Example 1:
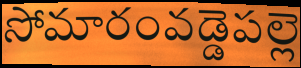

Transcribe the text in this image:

సోమారంవడ్డెపల్లె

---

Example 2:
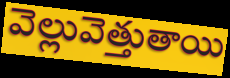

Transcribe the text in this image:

వెల్లువెత్తుతాయి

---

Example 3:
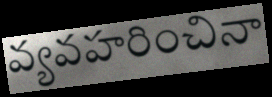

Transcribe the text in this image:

వ్యవహరించినా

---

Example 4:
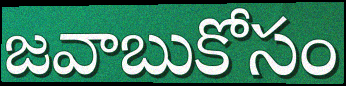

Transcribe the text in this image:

జవాబుకోసం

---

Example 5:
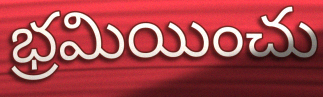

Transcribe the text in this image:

భ్రమియించు